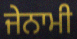
ਜੇਨਾਮੀ